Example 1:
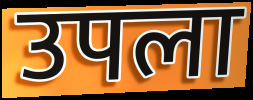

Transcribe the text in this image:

उपला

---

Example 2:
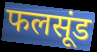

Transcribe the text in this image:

फलसूंड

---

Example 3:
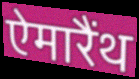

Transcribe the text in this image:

ऐमारैंथ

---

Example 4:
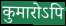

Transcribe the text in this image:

कुमारोऽपि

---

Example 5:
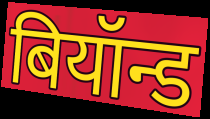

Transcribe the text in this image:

बियॉन्ड